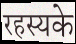
रहस्यके